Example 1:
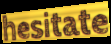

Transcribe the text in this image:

hesitate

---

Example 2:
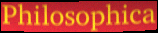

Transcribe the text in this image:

Philosophica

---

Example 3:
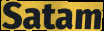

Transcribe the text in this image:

Satam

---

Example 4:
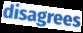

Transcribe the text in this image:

disagrees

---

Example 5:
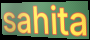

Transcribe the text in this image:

sahita